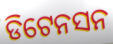
ଡିଟେନସନ